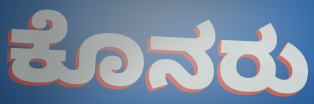
ಕೊನರು